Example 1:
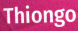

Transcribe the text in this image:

Thiongo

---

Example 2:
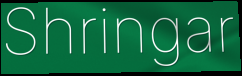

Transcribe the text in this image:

Shringar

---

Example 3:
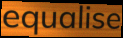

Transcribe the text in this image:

equalise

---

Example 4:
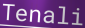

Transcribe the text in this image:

Tenali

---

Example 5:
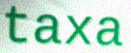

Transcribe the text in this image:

taxa